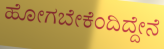
ಹೋಗಬೇಕೆಂದಿದ್ದೇನೆ